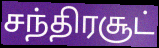
சந்திரசூட்